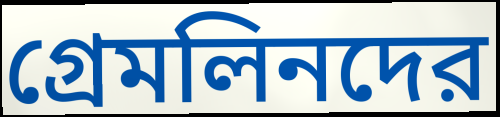
গ্রেমলিনদের